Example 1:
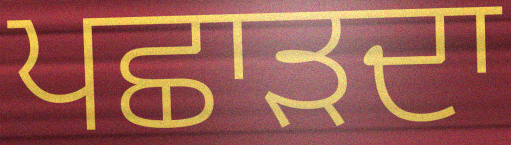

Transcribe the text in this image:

ਪਛਾੜਦਾ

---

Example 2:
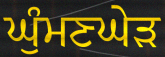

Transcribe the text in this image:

ਘੁੰਮਣਘੇੜ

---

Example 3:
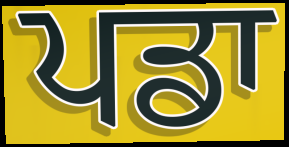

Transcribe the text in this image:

ਪਡਾ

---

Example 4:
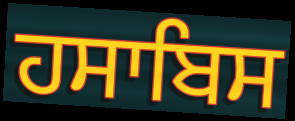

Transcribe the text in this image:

ਹਸਾਬਿਸ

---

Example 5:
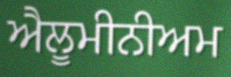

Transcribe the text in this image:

ਐਲੂਮੀਨੀਅਮ